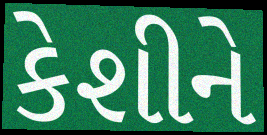
કેશીને